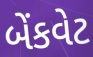
બેંકવેટ